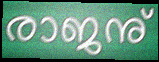
രാജനു്